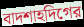
বাদশাহদিগের